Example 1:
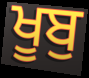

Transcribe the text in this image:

ਖੂਬੁ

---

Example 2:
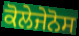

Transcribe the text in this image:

ਕੋਲੇਜੇਨੋਸ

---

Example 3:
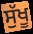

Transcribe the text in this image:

ਸੁੱਖੂ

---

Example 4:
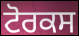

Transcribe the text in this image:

ਟੋਰਕਸ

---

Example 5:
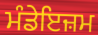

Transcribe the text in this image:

ਮੰਡੇਇਜ਼ਮ